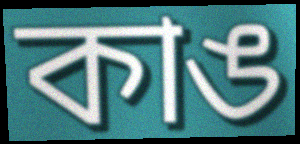
কাঙ